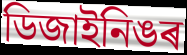
ডিজাইনিঙৰ